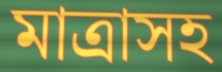
মাত্রাসহ